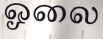
ஓலை